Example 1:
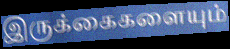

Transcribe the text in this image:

இருக்கைகளையும்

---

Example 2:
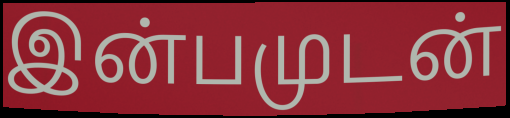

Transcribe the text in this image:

இன்பமுடன்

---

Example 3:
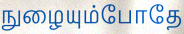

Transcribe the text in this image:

நுழையும்போதே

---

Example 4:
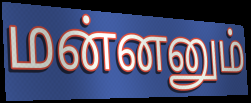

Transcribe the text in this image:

மன்னனும்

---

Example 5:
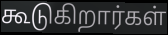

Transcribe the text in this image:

கூடுகிறார்கள்